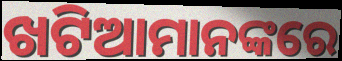
ଖଟିଆମାନଙ୍କରେ